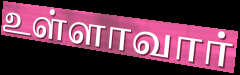
உள்ளாவார்